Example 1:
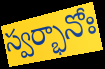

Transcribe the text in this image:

స్వర్భానోః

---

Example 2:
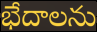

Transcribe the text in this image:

భేదాలను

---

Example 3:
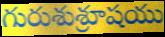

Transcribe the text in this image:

గురుశుశ్రూషయు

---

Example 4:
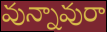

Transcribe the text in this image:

వున్నావురా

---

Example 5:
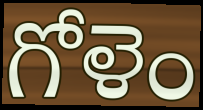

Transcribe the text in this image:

గోళెం